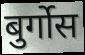
बुर्गोस